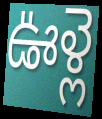
ఊళ్లె